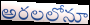
అరలలోనూ